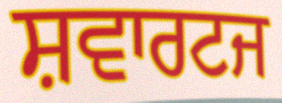
ਸ਼ਵਾਰਟਜ